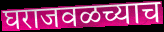
घराजवळच्याच